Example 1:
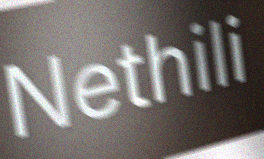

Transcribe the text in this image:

Nethili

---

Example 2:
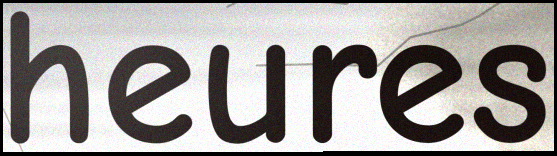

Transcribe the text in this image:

heures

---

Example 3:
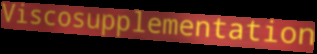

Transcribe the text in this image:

Viscosupplementation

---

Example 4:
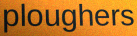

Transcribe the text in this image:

ploughers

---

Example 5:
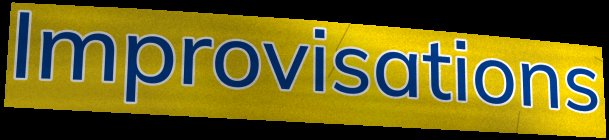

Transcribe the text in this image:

Improvisations